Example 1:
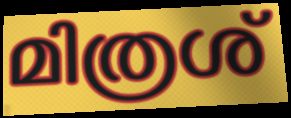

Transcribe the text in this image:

മിത്രശ്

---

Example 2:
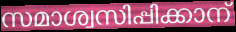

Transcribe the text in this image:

സമാശ്വസിപ്പിക്കാന്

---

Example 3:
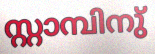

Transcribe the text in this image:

സ്റ്റാമ്പിനു്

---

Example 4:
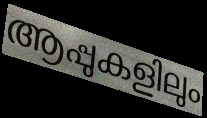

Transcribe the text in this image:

ആപ്പുകളിലും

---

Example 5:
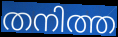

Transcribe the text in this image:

തനിത്ത